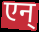
एन्